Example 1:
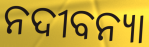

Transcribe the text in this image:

ନଦୀବନ୍ୟା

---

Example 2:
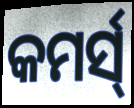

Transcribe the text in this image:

କମର୍ସ୍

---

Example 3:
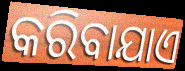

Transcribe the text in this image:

କରିବାଯାଏ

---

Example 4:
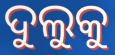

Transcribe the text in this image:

ଦୁଲୁକୁ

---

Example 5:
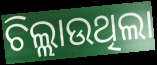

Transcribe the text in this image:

ଚିଲ୍ଲାଉଥିଲା